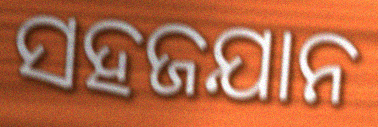
ସହଜଯାନ